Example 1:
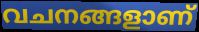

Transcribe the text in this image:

വചനങ്ങളാണ്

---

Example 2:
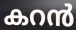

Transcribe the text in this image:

കറൻ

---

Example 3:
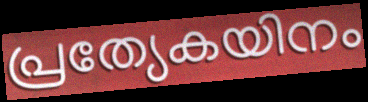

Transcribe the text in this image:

പ്രത്യേകയിനം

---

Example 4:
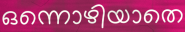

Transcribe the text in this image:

ഒന്നൊഴിയാതെ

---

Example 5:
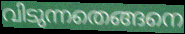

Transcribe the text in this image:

വിടുന്നതെങ്ങനെ